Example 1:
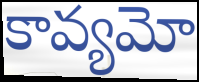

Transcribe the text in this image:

కావ్యమో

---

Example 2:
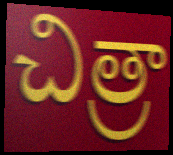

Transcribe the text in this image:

చిత్రా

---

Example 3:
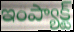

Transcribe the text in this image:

ఇంప్యాక్ట్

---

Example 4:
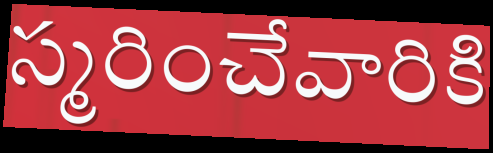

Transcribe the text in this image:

స్మరించేవారికి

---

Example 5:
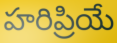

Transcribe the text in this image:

హరిప్రియే